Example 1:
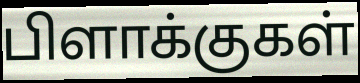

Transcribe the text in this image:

பிளாக்குகள்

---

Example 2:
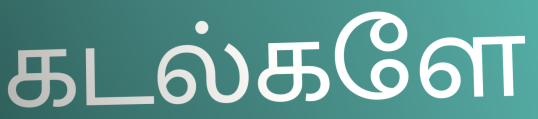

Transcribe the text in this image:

கடல்களே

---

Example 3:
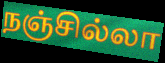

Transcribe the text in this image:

நஞ்சில்லா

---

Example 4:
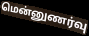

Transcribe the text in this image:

மென்னுணர்வு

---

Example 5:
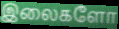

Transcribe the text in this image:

இலைகளோ